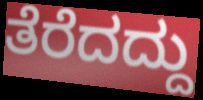
ತೆರೆದದ್ದು